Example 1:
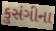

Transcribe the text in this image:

કુસંગીના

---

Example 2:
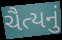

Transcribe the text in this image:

ચૈત્યનું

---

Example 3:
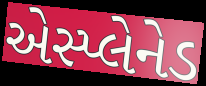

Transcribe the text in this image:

એસ્પ્લેનેડ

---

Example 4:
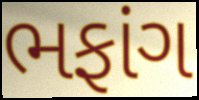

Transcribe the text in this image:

ભફાંગ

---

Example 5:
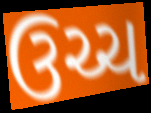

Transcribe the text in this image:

ઉચ્ચ